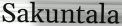
Sakuntala